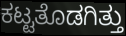
ಕಟ್ಟತೊಡಗಿತ್ತು